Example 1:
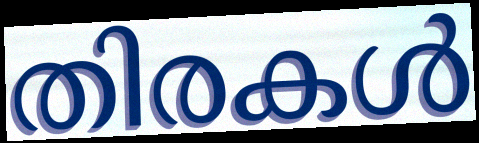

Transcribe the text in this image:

തിരകൾ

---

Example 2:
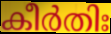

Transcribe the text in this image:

കീർതിഃ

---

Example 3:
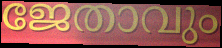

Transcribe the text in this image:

ജേതാവും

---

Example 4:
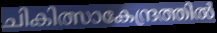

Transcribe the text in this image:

ചികിത്സാകേന്ദ്രത്തിൽ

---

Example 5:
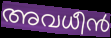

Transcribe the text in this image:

അവധീൻ